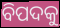
ବିପଦକୁ